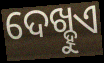
ଦେଖ୍ହୁଏ